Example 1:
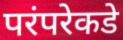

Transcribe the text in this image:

परंपरेकडे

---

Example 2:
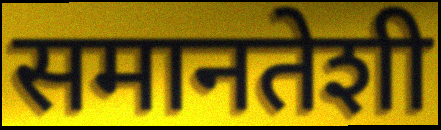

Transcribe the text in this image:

समानतेशी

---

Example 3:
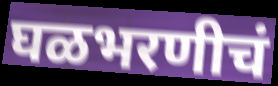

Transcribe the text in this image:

घळभरणीचं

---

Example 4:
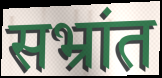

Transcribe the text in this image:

सभ्रांत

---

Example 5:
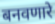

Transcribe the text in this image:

बनवणारे